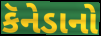
કૅનેડાનો